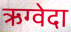
ऋग्वेदा